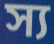
স্য